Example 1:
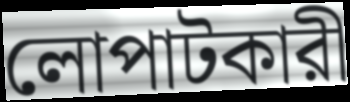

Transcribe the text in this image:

লোপাটকারী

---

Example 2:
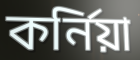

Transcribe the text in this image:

কর্নিয়া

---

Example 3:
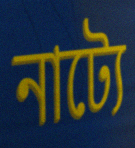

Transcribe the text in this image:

নাট্যে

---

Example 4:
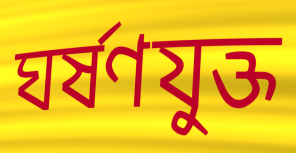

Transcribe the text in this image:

ঘর্ষণযুক্ত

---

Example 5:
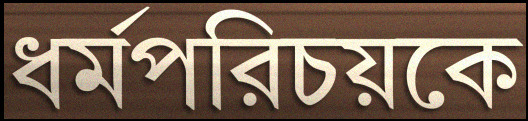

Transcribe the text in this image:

ধর্মপরিচয়কে